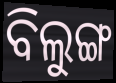
ବିଲୁଙ୍ଗ